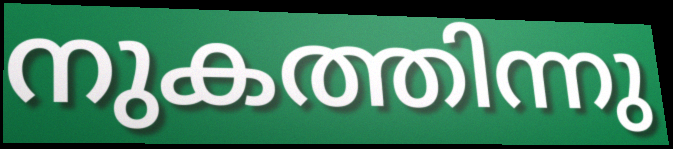
നുകത്തിന്നു